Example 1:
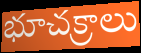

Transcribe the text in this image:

భూచక్రాలు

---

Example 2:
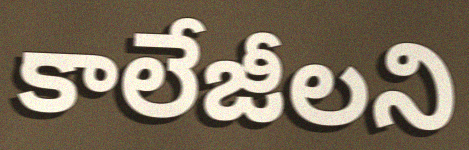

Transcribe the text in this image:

కాలేజీలని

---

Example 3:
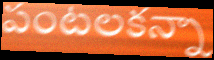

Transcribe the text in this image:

పంటలకన్నా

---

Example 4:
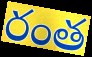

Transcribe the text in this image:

రంత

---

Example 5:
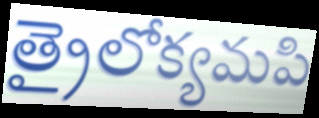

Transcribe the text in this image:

త్రైలోక్యమపి